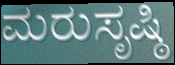
ಮರುಸೃಷ್ಠಿ